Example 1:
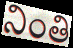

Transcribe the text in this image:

నింతి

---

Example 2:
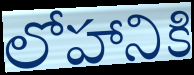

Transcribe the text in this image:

లోహానికి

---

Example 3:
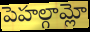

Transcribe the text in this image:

పెహల్గామ్లో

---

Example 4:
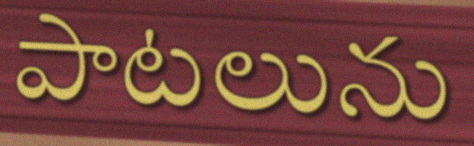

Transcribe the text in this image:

పాటలును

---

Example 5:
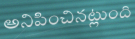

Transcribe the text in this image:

అనిపించినట్లుంది